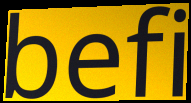
befi